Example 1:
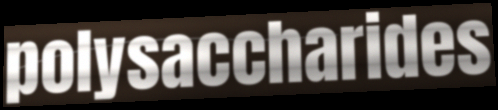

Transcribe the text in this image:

polysaccharides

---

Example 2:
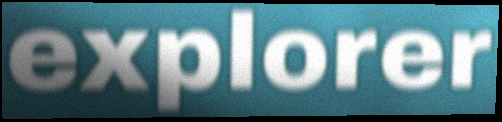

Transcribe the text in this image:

explorer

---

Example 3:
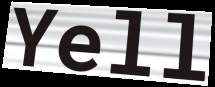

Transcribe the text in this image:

Yell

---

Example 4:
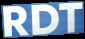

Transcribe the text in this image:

RDT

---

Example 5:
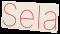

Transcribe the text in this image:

Sela